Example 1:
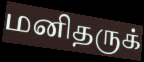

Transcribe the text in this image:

மனிதருக்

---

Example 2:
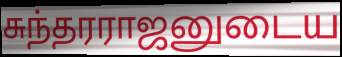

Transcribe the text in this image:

சுந்தரராஜனுடைய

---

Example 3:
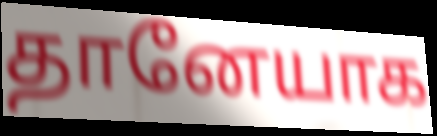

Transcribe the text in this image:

தானேயாக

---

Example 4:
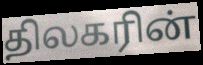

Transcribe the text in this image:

திலகரின்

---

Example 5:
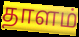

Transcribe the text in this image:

தாளம்